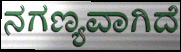
ನಗಣ್ಯವಾಗಿದೆ